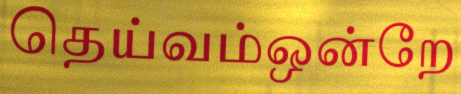
தெய்வம்ஒன்றே